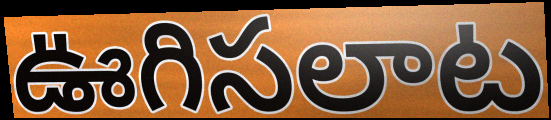
ఊగిసలాట